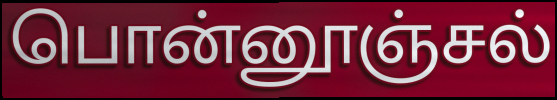
பொன்னூஞ்சல்